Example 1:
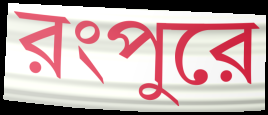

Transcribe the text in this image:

রংপুরে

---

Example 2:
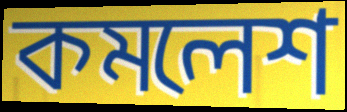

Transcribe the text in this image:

কমলেশ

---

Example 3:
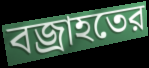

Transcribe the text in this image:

বজ্রাহতের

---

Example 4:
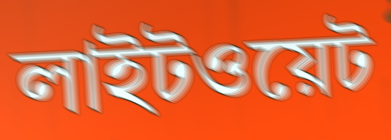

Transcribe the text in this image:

লাইটওয়েট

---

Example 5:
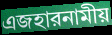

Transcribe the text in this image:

এজহারনামীয়